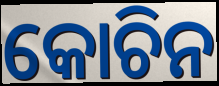
କୋଚିନ